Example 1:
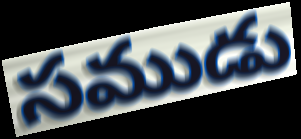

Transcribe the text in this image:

సముడు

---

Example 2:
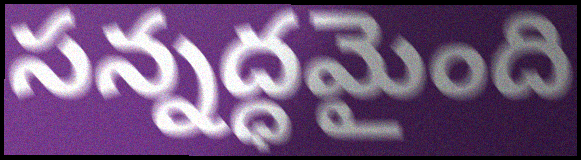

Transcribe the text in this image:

సన్నద్ధమైంది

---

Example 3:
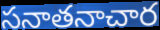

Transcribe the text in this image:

సనాతనాచార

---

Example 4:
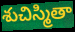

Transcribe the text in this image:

శుచిస్మితా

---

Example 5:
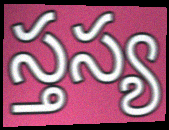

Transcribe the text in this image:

స్తస్య